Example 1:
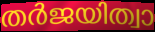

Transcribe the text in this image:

തർജയിത്വാ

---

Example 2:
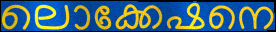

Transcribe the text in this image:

ലൊക്കേഷനെ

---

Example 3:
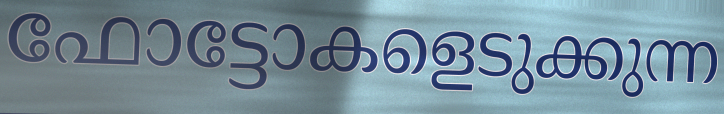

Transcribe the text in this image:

ഫോട്ടോകളെടുക്കുന്ന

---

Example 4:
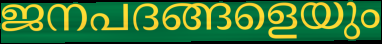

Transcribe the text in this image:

ജനപദങ്ങളെയും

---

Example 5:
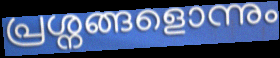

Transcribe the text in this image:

പ്രശ്നങ്ങളൊന്നും